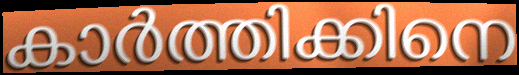
കാർത്തിക്കിനെ